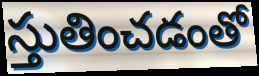
స్తుతించడంతో